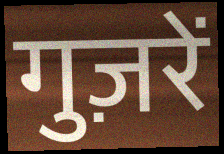
गुज़रें